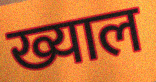
ख्याल